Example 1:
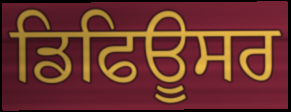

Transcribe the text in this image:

ਡਿਫਿਊਸਰ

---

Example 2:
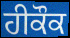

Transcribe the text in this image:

ਹੀਕੌਕ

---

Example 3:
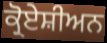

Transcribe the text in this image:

ਕ੍ਰੋਏਸ਼ੀਅਨ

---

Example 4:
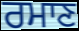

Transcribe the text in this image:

ਰਮਾਣ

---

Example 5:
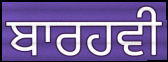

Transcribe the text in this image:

ਬਾਰਹਵੀ